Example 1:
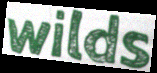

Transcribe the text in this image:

wilds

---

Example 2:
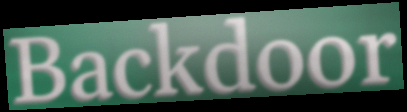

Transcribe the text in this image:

Backdoor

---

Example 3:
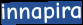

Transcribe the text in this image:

innapira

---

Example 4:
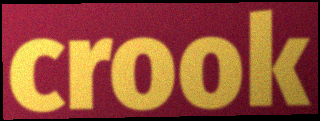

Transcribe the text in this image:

crook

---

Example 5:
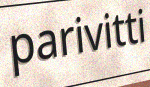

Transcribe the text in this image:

parivitti